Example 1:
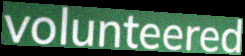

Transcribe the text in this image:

volunteered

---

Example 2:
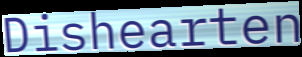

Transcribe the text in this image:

Dishearten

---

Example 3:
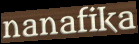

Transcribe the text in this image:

nanafika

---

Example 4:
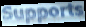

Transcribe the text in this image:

Supports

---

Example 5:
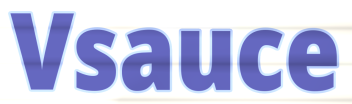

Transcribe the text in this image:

Vsauce